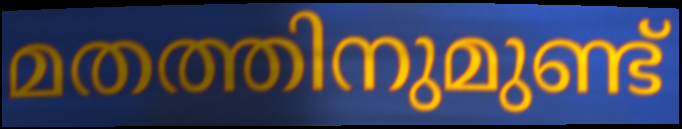
മതത്തിനുമുണ്ട്